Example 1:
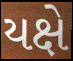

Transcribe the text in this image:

યક્ષે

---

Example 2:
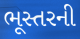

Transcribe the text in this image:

ભૂસ્તરની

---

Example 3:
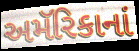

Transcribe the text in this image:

અમૅરિકાનાં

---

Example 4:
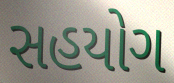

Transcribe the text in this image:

સહયોગ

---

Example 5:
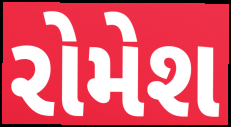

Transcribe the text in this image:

રોમેશ